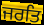
ਜਰਤਿ